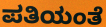
ಪತಿಯಂತೆ